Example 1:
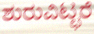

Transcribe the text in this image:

ಶುರುವಿಟ್ಟರೆ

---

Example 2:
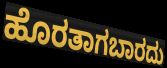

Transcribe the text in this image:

ಹೊರತಾಗಬಾರದು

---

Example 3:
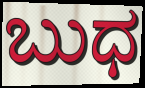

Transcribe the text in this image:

ಬುಧ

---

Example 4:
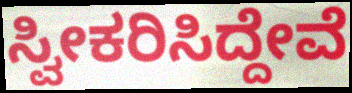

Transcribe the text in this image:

ಸ್ವೀಕರಿಸಿದ್ದೇವೆ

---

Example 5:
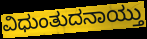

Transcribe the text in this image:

ವಿಧುಂತುದನಾಯ್ತು